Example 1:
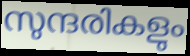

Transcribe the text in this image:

സുന്ദരികളും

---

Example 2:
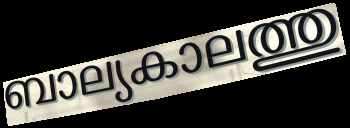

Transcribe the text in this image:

ബാല്യകാലത്തു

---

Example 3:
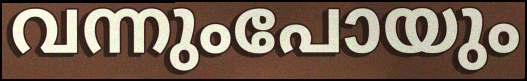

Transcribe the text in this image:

വന്നുംപോയും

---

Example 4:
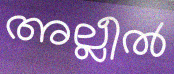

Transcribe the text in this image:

അല്ലീൽ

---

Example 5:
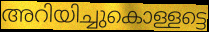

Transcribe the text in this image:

അറിയിച്ചുകൊള്ളട്ടെ